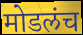
मोडलंच